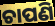
ଚାପଣି